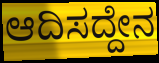
ಆದಿಸದ್ದೇನ